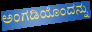
ಅಂಗಡಿಯೊಂದನ್ನು